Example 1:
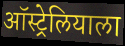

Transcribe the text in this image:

ऑस्ट्रेलियाला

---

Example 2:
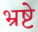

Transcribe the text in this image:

भ्रष्टे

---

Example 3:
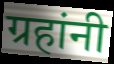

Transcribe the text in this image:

ग्रहांनी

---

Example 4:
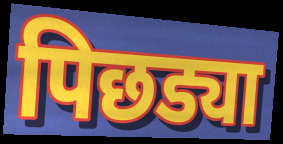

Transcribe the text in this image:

पिछड्या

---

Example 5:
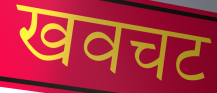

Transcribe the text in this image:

खवचट